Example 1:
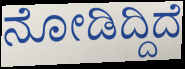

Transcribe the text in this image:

ನೋಡಿದ್ದಿದೆ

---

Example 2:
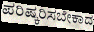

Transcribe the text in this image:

ಪರಿಷ್ಕರಿಸಬೇಕಾದ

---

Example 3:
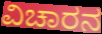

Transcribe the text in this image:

ವಿಚಾರನ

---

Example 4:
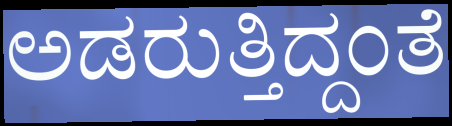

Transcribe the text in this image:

ಅಡರುತ್ತಿದ್ದಂತೆ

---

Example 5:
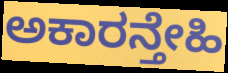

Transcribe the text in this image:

ಅಕಾರನ್ತೇಹಿ